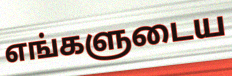
எங்களுடைய